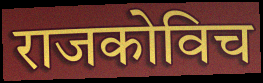
राजकोविच